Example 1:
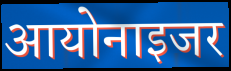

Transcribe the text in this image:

आयोनाइजर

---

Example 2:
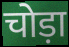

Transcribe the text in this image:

चोड़ा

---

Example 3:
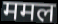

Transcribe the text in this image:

ममल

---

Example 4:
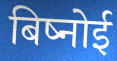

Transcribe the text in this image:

बिष्नोई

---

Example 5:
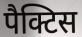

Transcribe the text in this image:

पैक्टिस